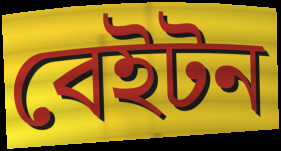
বেইটন